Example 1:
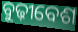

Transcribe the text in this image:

ବୁଢ଼ୀବେଶ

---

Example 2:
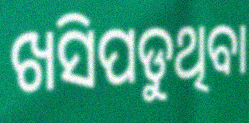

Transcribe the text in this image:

ଖସିପଡୁଥିବା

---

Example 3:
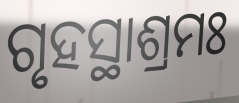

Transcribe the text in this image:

ଗୃହସ୍ଥାଶ୍ରମଃ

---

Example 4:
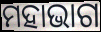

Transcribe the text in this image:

ମହାଭାଗ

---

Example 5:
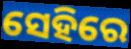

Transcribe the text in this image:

ସେହିରେ